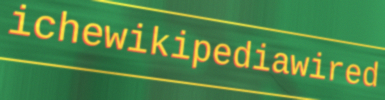
ichewikipediawired